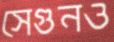
সেগুনও